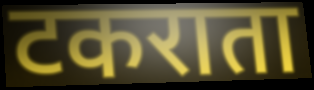
टकराता